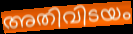
അതിവിടയം